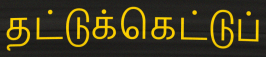
தட்டுக்கெட்டுப்